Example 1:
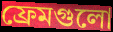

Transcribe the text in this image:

ফ্রেমগুলো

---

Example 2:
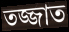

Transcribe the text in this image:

তজ্জাত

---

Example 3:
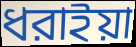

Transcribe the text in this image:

ধরাইয়া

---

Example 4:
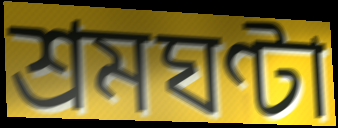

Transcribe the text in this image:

শ্রমঘণ্টা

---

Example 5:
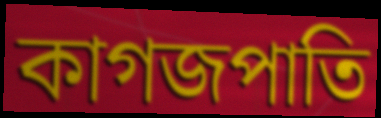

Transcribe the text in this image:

কাগজপাতি